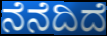
ನೆನೆದಿದೆ